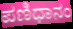
ಪಣಿಧಾನಂ